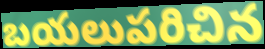
బయలుపరిచిన